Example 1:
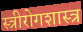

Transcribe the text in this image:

स्त्रीरोगशास्त्र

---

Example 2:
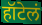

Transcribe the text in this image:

हॉटेलं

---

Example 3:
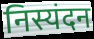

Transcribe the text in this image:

निस्यंदन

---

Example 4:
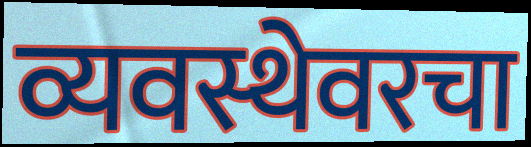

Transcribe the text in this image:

व्यवस्थेवरचा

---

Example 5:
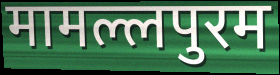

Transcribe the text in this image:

मामल्लपुरम